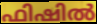
ഫിഷിൽ